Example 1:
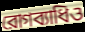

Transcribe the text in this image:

রোগব্যাধিও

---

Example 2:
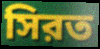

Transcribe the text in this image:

সিরত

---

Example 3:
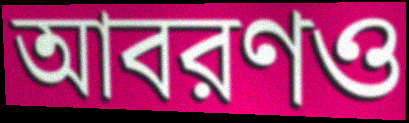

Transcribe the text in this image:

আবরণও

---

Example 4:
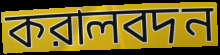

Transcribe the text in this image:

করালবদন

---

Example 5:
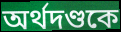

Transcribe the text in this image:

অর্থদণ্ডকে